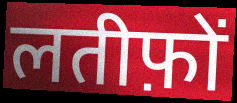
लतीफ़ों